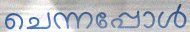
ചെന്നപ്പോൾ